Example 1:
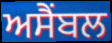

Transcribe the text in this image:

ਅਸੈਂਬਲ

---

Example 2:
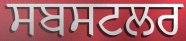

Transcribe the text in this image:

ਸਬਸਟਲਰ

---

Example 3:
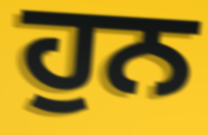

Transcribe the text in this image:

ਹੁਨ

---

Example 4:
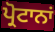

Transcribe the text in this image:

ਪ੍ਰੋਟਾਨਾਂ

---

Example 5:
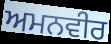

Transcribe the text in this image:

ਅਮਨਵੀਰ